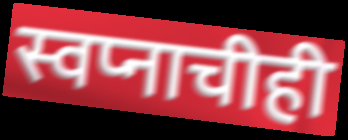
स्वप्नाचीही